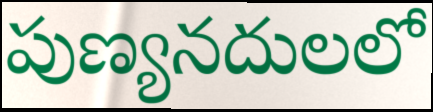
పుణ్యనదులలో